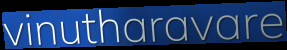
vinutharavare